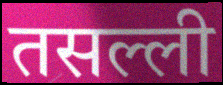
तसल्‍ली